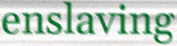
enslaving